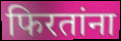
फिरतांना